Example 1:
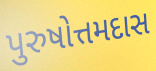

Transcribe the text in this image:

પુરુષોત્તમદાસ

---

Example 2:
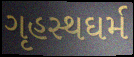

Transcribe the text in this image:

ગૃહસ્થઘર્મ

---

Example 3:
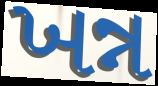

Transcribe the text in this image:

ખન્ન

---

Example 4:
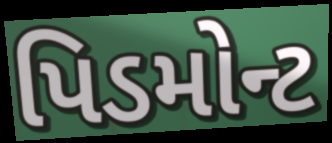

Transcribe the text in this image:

પિડમોન્ટ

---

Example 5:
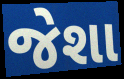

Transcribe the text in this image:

જેશા